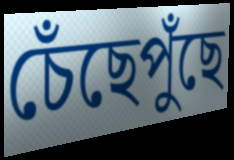
চেঁছেপুঁছে